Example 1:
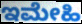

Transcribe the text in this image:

ಇಮೇಹಿ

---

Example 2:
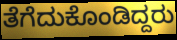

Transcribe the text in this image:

ತೆಗೆದುಕೊಂಡಿದ್ದರು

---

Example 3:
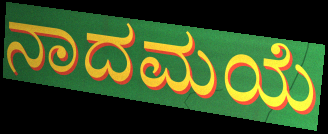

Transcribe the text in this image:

ನಾದಮಯೆ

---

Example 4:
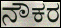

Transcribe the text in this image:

ನೌಕರ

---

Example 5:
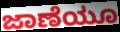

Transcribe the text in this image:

ಜಾಣೆಯೂ